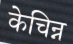
केचिन्न